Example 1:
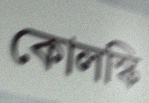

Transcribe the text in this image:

কোলস্কি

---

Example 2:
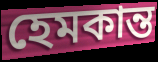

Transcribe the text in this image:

হেমকান্ত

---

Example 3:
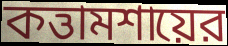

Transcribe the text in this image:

কত্তামশায়ের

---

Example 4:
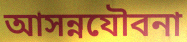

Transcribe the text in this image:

আসন্নযৌবনা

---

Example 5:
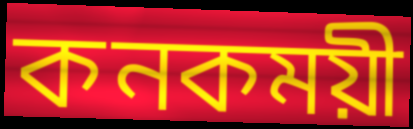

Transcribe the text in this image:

কনকময়ী